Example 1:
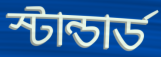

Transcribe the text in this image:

স্টান্ডার্ড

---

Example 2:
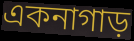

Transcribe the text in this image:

একনাগাড়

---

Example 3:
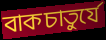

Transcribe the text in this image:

বাকচাতুর্যে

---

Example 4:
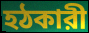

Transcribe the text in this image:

হঠকারী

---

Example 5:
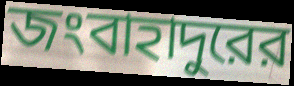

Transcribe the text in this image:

জংবাহাদুরের